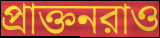
প্রাক্তনরাও